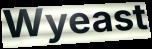
Wyeast